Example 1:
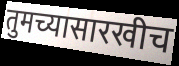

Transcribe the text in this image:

तुमच्यासारखीच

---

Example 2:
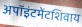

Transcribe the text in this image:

अपॉइंटमेंटशिवाय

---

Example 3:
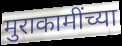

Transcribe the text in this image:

मुराकामींच्या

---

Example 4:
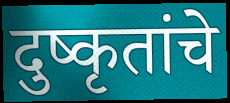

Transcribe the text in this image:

दुष्कृतांचे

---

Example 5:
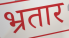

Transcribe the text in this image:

भ्रतार